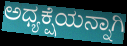
ಅಧ್ಯಕ್ಷೆಯನ್ನಾಗಿ